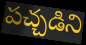
పచ్చడిని